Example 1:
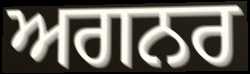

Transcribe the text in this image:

ਅਗਨਰ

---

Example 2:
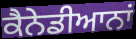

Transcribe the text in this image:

ਕੈਨੇਡੀਆਨਾਂ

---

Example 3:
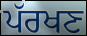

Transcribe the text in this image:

ਪੱਰਖਣ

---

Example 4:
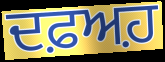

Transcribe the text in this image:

ਦਫ਼ਅ਼ਹ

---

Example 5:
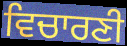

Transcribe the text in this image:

ਵਿਚਾਰਣੀ